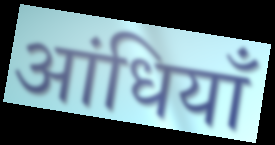
आंधियाँ